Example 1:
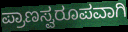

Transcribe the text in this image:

ಪ್ರಾಣಸ್ವರೂಪವಾಗಿ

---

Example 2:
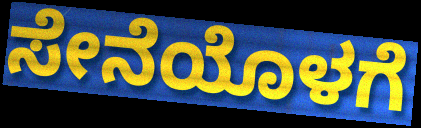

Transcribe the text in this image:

ಸೇನೆಯೊಳಗೆ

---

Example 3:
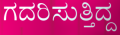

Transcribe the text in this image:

ಗದರಿಸುತ್ತಿದ್ದ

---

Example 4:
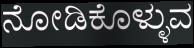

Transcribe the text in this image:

ನೋಡಿಕೊಳ್ಳುವ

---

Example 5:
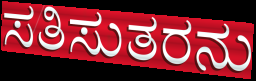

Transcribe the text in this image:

ಸತಿಸುತರನು